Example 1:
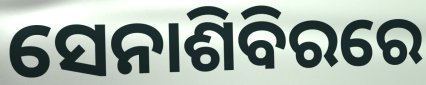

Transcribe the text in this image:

ସେନାଶିବିରରେ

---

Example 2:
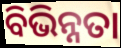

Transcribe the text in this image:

ବିଭିନ୍ନତା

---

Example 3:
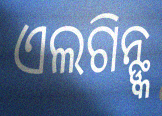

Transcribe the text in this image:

ଏଲଗିନ୍ଙ୍କ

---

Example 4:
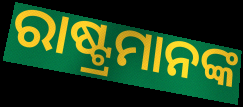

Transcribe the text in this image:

ରାଷ୍ଟ୍ରମାନଙ୍କ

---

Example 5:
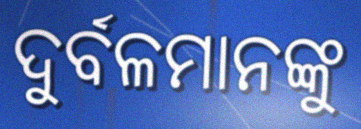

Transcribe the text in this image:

ଦୁର୍ବଳମାନଙ୍କୁ